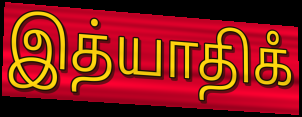
இத்யாதிகஂ